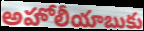
అహోలీయాబుకు